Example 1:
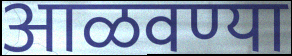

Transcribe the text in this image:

आळवण्या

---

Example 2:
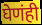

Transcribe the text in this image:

घेणंही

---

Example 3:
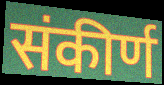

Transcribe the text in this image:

संकीर्ण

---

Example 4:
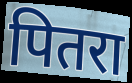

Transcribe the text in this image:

पितरा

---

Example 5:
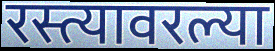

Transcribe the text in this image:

रस्त्यावरल्या